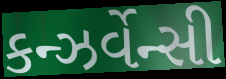
કન્ઝર્વેન્સી